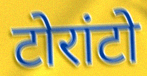
टोरांटो